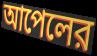
আপেলের